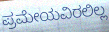
ಪ್ರಮೇಯವಿರಲಿಲ್ಲ